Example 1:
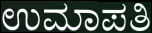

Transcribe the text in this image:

ಉಮಾಪತಿ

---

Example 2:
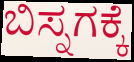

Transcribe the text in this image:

ಬಿಸ್ನಗಕ್ಕೆ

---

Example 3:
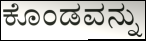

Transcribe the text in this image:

ಕೊಂಡವನ್ನು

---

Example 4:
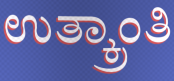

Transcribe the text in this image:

ಉತ್ಕ್ರಾಂತಿ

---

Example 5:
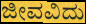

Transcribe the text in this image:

ಜೀವವಿದು